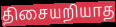
திசையறியாத